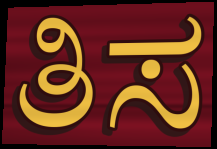
ತಿಸ